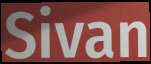
Sivan